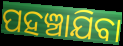
ପହଞ୍ଚାଯିବା